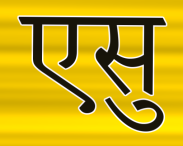
एसु